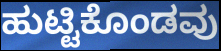
ಹುಟ್ಟಿಕೊಂಡವು